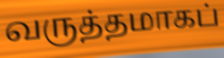
வருத்தமாகப்